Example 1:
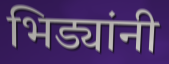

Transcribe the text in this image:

भिड्यांनी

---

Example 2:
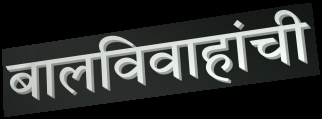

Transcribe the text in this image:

बालविवाहांची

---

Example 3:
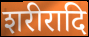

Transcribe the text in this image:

शरीरादि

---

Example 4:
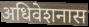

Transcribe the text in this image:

अधिवेशनास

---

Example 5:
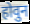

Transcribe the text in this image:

होवुन